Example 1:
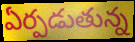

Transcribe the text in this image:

ఏర్పడుతున్న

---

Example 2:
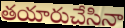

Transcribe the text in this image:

తయారుచేసినా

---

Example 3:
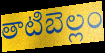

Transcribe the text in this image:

తాటిబెల్లం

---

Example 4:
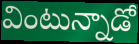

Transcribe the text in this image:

వింటున్నాడో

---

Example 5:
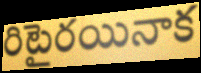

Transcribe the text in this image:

రిటైరయినాక